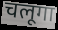
चलूगा